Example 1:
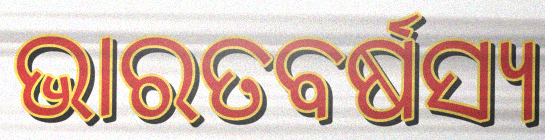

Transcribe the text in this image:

ଭାରତବର୍ଷସ୍ୟ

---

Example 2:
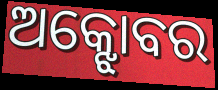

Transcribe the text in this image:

ଅକ୍ଝୋବର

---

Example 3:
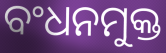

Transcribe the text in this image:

ବଂଧନମୁକ୍ତ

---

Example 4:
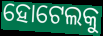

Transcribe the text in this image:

ହୋଟେଲକୁ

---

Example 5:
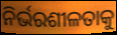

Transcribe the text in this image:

ନିର୍ଭରଶୀଳତାକୁ